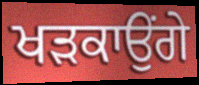
ਖੜਕਾਉਂਗੇ